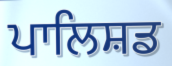
ਪਾਲਿਸ਼ਡ